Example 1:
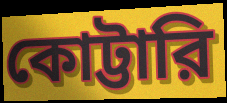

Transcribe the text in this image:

কোট্টারি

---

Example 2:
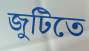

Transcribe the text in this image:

জুটিতে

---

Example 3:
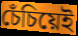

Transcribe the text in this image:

চেঁচিয়েই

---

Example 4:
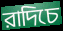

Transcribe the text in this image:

রাদিচে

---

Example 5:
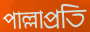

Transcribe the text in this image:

পাল্লাপ্রতি